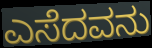
ಎಸೆದವನು